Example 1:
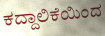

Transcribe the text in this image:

ಕದ್ದಾಲಿಕೆಯಿಂದ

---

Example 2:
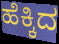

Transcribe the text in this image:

ಹೆಕ್ಕಿದ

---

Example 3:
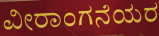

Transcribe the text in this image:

ವೀರಾಂಗನೆಯರ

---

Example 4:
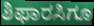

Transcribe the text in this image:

ಶಿಫಾರಸಿಗೂ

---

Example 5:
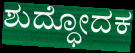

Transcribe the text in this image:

ಶುದ್ಧೋದಕ